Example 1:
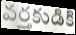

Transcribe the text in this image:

వర్తకుడికి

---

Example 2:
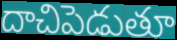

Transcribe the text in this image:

దాచిపెడుతూ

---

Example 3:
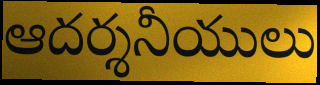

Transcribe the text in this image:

ఆదర్శనీయులు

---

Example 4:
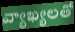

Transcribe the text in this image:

వ్యాఖ్యలతో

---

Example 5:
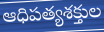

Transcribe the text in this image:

ఆధిపత్యశక్తుల